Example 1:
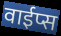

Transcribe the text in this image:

वाईप्स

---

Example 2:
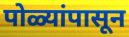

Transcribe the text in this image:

पोळ्यांपासून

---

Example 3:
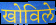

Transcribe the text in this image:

खोविले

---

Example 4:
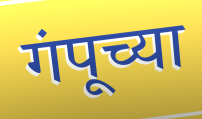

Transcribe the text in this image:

गंपूच्या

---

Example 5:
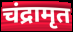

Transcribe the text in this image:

चंद्रामृत